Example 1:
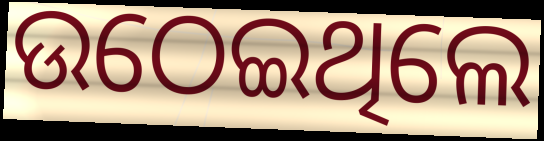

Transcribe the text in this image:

ଉଠେଇଥିଲେ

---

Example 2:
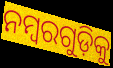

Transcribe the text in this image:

ନମ୍ବରଗୁଡ଼ିକୁ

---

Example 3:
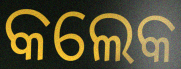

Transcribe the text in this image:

କଲେକ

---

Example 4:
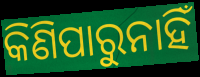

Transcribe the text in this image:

କିଣିପାରୁନାହିଁ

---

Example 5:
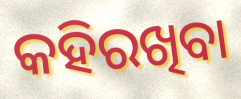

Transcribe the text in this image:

କହିରଖିବା